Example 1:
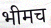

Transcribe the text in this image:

भीमच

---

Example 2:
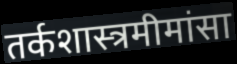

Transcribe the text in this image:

तर्कशास्त्रमीमांसा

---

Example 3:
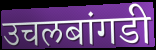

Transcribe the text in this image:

उचलबांगडी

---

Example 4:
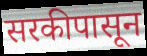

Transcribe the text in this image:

सरकीपासून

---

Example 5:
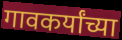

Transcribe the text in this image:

गावकर्यांच्या